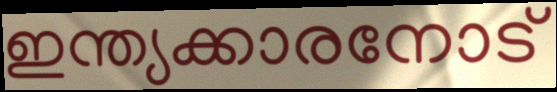
ഇന്ത്യക്കാരനോട്